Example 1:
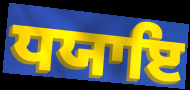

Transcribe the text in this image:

ਧਯਾਇ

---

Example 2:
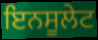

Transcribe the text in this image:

ਇਨਸੂਲੇਟ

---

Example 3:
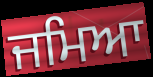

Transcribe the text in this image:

ਜਮਿਆ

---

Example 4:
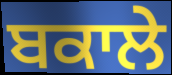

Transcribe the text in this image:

ਬਕਾਲੇ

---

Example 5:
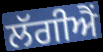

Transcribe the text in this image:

ਲੱਗੀਐਂ